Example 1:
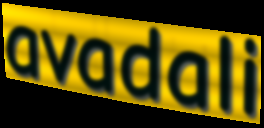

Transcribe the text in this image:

avadali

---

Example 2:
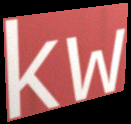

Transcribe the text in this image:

kw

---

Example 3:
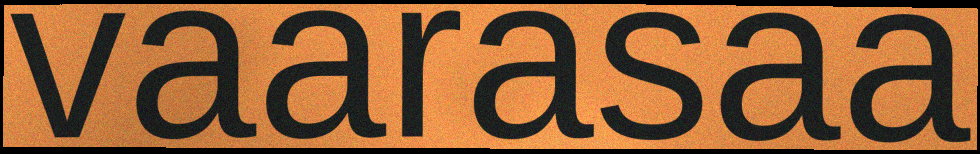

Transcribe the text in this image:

vaarasaa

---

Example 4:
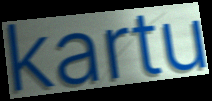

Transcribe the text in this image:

kartu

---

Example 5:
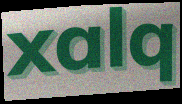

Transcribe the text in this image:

xalq